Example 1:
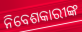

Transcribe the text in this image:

ନିବେଶକାରୀଙ୍କ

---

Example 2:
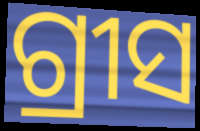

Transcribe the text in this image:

ଗ୍ରୀସ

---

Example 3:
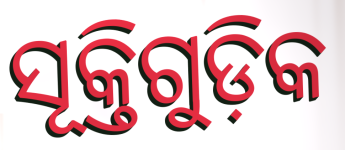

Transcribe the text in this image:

ସୂକ୍ତିଗୁଡ଼ିକ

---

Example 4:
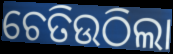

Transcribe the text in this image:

ଚେତିଉଠିଲା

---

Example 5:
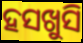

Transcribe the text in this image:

ହସଖୁସି